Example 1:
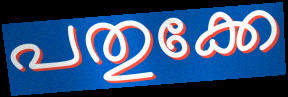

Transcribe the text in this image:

പതുക്കേ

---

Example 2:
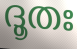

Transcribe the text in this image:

ദൂതഃ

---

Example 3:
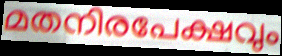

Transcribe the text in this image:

മതനിരപേക്ഷവും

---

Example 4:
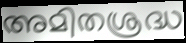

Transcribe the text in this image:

അമിതശ്രദ്ധ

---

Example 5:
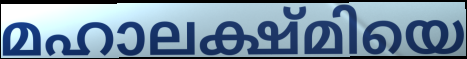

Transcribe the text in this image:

മഹാലക്ഷ്മിയെ